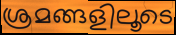
ശ്രമങ്ങളിലൂടെ